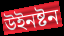
উইনষ্টন